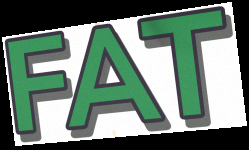
FAT